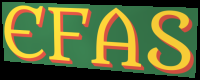
EFAS